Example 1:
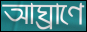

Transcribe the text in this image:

আঘ্রাণে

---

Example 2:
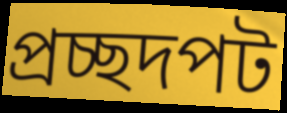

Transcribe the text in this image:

প্রচ্ছদপট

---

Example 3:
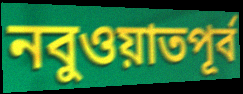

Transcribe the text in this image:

নবুওয়াতপূর্ব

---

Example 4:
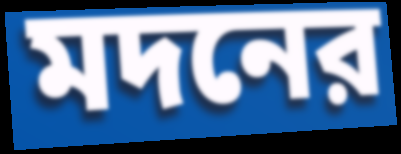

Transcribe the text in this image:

মদনের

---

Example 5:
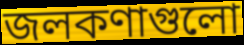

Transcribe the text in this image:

জলকণাগুলো